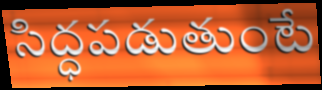
సిద్ధపడుతుంటే